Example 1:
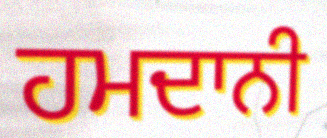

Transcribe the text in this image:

ਹਮਦਾਨੀ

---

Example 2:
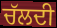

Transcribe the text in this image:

ਚੱਲਦੀ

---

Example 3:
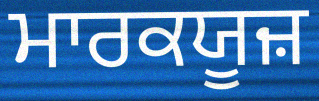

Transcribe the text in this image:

ਮਾਰਕਯੂਜ਼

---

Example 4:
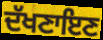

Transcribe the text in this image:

ਦੱਖਣਾਇਣ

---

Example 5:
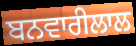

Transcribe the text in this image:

ਬਨਵਾਰੀਲਾਲ